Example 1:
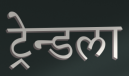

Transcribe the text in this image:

ट्रेन्डला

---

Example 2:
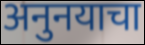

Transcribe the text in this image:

अनुनयाचा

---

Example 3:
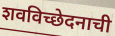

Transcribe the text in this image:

शवविच्छेदनाची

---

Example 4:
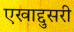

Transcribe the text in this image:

एखाद्दुसरी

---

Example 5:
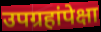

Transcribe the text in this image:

उपग्रहांपेक्षा